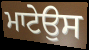
ਮਾਟੇਉਸ